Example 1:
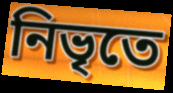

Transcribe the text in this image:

নিভৃতে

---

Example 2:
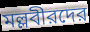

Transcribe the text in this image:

মল্লবীরদের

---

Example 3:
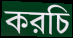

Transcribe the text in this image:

করচি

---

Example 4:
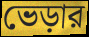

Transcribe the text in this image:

ভেড়ার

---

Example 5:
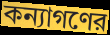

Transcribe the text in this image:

কন্যাগণের